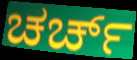
ಚರ್ಚ್